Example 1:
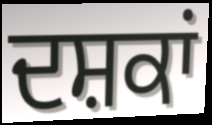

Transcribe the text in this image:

ਦਸ਼ਕਾਂ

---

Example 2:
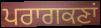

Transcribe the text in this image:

ਪਰਾਗਕਣਾਂ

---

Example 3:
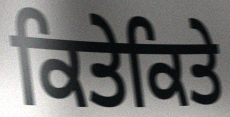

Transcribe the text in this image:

ਕਿਤੇਕਿਤੇ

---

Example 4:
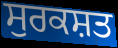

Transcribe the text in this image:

ਸੁਰਕਸ਼ਤ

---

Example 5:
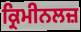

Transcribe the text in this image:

ਕ੍ਰਿਮੀਨਲਜ਼